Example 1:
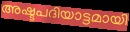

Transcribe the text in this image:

അഷ്ടപദിയാട്ടമായി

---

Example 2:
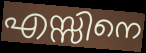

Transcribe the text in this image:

എസ്സിനെ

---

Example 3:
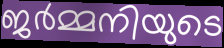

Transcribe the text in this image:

ജർമ്മനിയുടെ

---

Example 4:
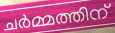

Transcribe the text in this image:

ചർമ്മത്തിന്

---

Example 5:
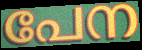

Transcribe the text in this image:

പേന